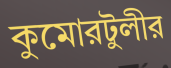
কুমোরটুলীর